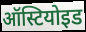
ऑस्टियोइड